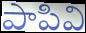
పాపివి